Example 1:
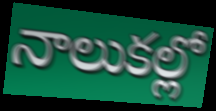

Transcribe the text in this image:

నాలుకల్లో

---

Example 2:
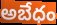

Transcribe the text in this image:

అబేధం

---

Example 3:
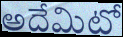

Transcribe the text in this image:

అదేమిటో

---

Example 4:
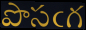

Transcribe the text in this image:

పొసఁగ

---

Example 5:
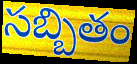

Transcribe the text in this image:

సబ్బితం